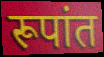
रूपांत